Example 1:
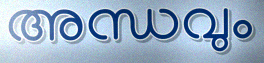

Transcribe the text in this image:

അന്ധവും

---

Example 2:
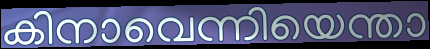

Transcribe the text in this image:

കിനാവെന്നിയെന്താ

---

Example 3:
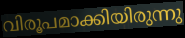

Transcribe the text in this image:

വിരൂപമാക്കിയിരുന്നു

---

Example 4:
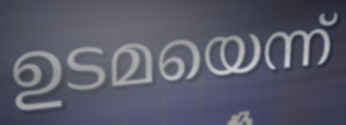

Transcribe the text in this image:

ഉടമയെന്ന്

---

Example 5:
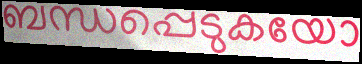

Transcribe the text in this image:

ബന്ധപ്പെടുകയോ